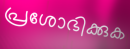
പ്രശോഭിക്കുക